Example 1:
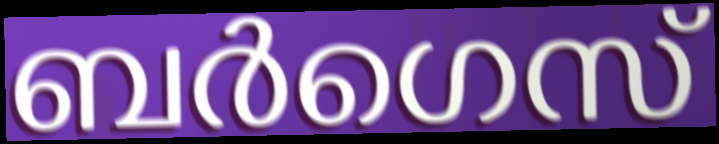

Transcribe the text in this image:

ബർഗെസ്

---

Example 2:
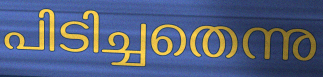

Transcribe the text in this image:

പിടിച്ചതെന്നു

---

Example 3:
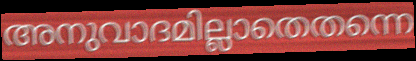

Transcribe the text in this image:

അനുവാദമില്ലാതെതന്നെ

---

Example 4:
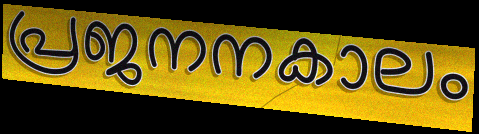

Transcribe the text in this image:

പ്രജനനകാലം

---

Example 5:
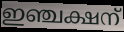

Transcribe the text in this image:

ഇഞ്ചക്ഷന്